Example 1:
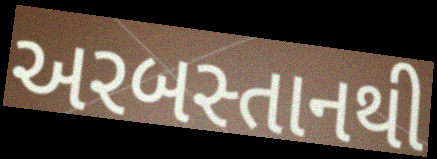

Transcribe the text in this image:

અરબસ્તાનથી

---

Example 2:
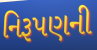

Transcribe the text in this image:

નિરૂપણની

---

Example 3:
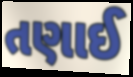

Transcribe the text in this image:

તણાઈ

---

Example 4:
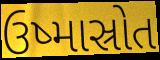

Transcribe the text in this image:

ઉષ્માસ્રોત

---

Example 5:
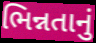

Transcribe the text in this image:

ભિન્નતાનું